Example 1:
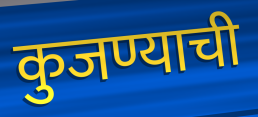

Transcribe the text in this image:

कुजण्याची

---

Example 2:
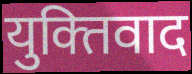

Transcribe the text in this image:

युक्‍तिवाद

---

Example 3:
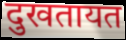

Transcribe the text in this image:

दुखतायत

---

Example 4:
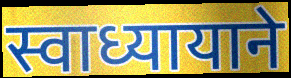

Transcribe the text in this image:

स्वाध्यायाने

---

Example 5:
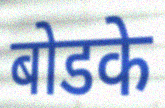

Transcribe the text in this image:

बोडके